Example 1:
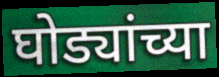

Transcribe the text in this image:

घोड्यांच्या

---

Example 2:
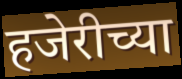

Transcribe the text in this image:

हजेरीच्या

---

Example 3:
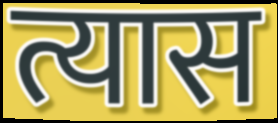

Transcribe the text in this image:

त्यास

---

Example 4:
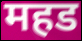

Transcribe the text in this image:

महड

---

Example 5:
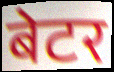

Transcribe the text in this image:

बेटर